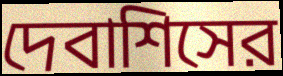
দেবাশিসের